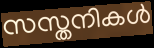
സസ്തനികൾ